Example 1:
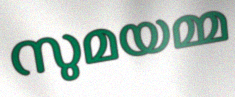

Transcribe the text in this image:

സുമയമ്മ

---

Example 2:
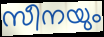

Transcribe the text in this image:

സീനയും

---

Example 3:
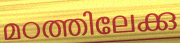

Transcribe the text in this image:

മഠത്തിലേക്കു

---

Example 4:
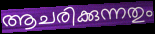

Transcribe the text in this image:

ആചരിക്കുന്നതും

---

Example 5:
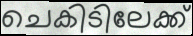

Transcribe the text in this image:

ചെകിടിലേക്ക്